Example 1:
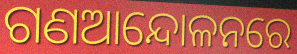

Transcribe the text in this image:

ଗଣଆନ୍ଦୋଳନରେ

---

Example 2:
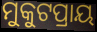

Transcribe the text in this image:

ମୁକୁଟପ୍ରାୟ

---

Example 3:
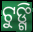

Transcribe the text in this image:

ଟୁଙ୍ଗି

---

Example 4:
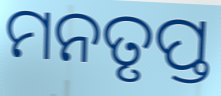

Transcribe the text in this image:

ମନତୃପ୍ତ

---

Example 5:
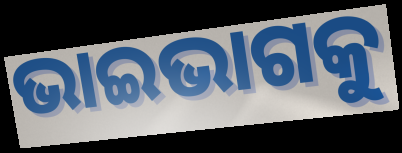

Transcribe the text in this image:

ଭାଇଭାଗକୁ